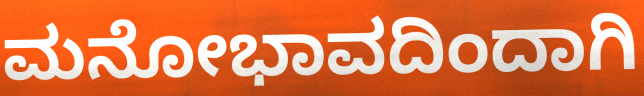
ಮನೋಭಾವದಿಂದಾಗಿ